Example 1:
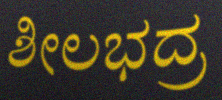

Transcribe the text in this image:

ಶೀಲಭದ್ರ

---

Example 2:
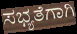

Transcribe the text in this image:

ಸಭ್ಯತೆಗಾಗಿ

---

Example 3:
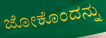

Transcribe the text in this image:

ಜೋಕೊಂದನ್ನು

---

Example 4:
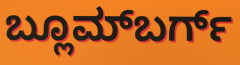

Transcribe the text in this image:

ಬ್ಲೂಮ್‌ಬರ್ಗ್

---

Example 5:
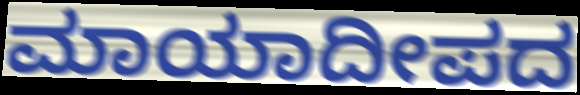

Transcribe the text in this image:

ಮಾಯಾದೀಪದ